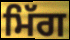
ਮਿੱਗ